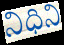
నిధిని